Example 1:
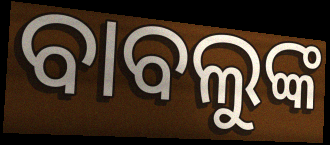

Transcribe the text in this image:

ବାବଲୁଙ୍କ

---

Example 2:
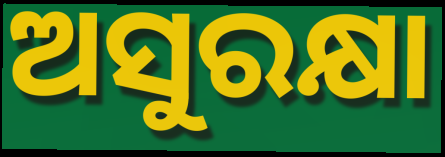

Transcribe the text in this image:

ଅସୁରକ୍ଷା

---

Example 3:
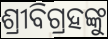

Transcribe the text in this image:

ଶ୍ରୀବିଗ୍ରହଙ୍କୁ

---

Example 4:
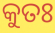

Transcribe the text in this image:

କୁତଃ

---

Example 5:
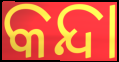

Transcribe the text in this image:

କନ୍ଦା